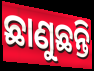
ଛାଣୁଛନ୍ତି